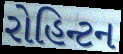
રોહિન્ટન